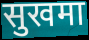
सुखमा